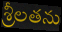
శ్రీలతను